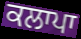
ਕਲਾਪਾ